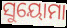
ସୁୟୋମା